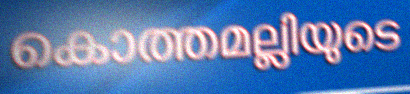
കൊത്തമല്ലിയുടെ